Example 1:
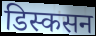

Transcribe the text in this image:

डिस्कसन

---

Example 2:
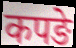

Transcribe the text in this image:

कपङे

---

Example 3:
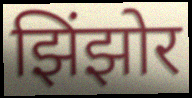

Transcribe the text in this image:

झिंझोर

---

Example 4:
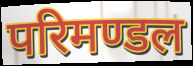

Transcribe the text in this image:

परिमण्डल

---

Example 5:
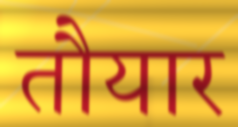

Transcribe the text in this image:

तौयार